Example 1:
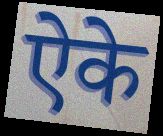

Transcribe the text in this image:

ऐके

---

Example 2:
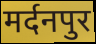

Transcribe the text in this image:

मर्दनपुर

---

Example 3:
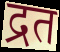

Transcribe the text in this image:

द्रत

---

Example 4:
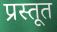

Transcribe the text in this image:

प्रस्तूत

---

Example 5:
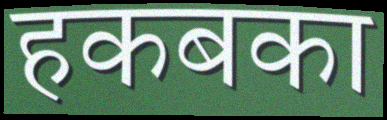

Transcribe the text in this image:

हकबका